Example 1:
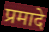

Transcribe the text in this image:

प्रमादे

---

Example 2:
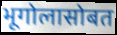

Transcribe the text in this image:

भूगोलासोबत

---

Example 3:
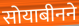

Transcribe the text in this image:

सोयाबीनने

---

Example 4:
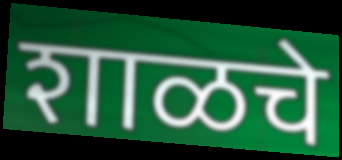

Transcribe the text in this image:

शाळचे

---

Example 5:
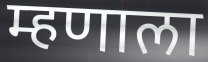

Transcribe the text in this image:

म्‍हणाला